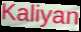
Kaliyan